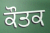
ਕੌਤਕ